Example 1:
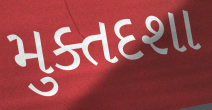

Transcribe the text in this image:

મુક્તદશા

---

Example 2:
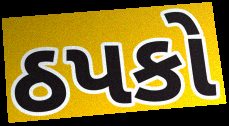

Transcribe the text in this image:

ઠપકો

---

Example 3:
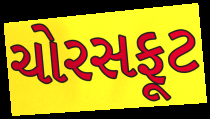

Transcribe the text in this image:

ચોરસફૂટ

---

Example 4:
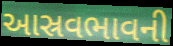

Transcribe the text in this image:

આસ્રવભાવની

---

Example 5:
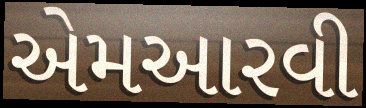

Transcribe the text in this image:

એમઆરવી